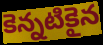
కెన్నటికైన